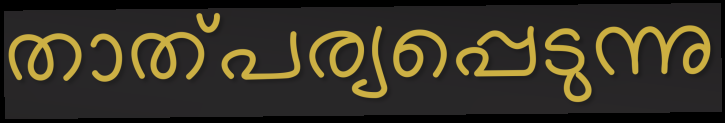
താത്പര്യപ്പെടുന്നു